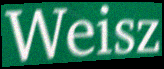
Weisz